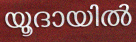
യൂദായിൽ